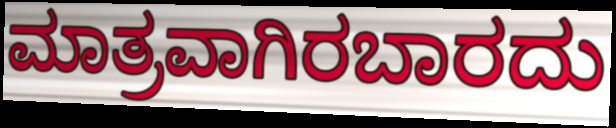
ಮಾತ್ರವಾಗಿರಬಾರದು